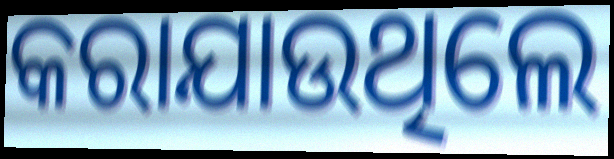
କରାଯାଉଥିଲେ